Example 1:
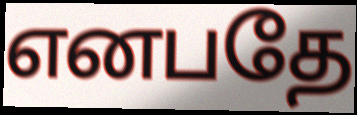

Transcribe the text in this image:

எனபதே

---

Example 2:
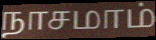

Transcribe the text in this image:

நாசமாம்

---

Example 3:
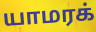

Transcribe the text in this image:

யாமரக்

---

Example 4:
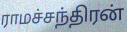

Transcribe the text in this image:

ராமச்சந்திரன்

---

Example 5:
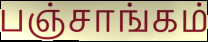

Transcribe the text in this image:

பஞ்சாங்கம்